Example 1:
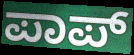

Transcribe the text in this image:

ಪಾಪ್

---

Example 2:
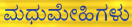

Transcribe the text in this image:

ಮಧುಮೇಹಿಗಳು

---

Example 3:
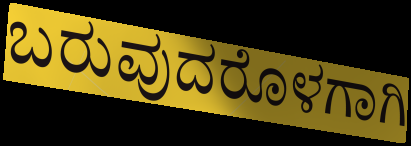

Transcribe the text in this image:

ಬರುವುದರೊಳಗಾಗಿ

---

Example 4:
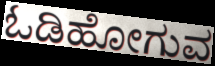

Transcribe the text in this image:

ಓಡಿಹೋಗುವ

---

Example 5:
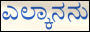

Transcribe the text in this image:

ಎಲ್ಕಾನನು